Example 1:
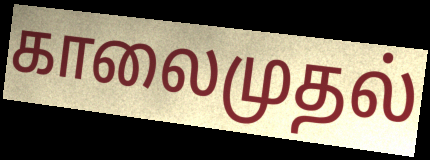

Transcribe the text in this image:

காலைமுதல்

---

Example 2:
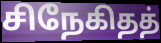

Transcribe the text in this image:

சிநேகிதத்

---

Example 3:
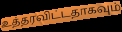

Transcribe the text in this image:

உத்தரவிட்டதாகவும்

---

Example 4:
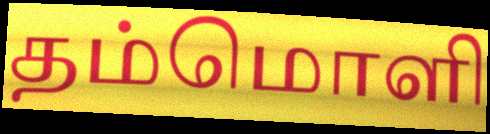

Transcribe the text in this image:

தம்மொளி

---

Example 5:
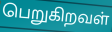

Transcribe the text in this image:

பெறுகிறவள்